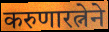
करुणारत्नेने